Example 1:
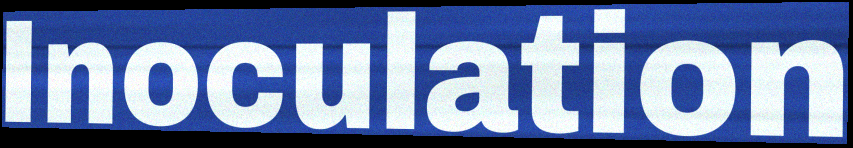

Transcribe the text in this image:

Inoculation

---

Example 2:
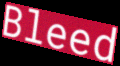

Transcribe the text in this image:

Bleed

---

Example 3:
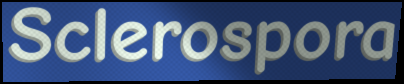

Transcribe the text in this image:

Sclerospora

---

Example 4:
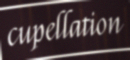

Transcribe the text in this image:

cupellation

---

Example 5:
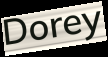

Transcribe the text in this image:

Dorey